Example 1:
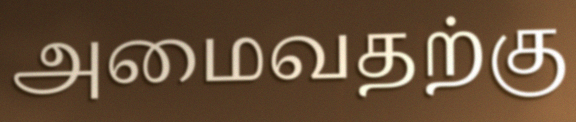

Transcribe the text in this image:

அமைவதற்கு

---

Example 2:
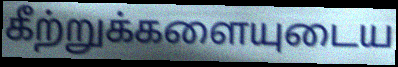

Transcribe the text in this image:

கீற்றுக்களையுடைய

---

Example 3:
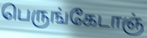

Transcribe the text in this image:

பெருங்கேடாஞ்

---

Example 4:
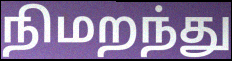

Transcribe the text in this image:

நிமறந்து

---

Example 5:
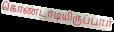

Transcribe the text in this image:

கொண்டாடியிருப்பார்